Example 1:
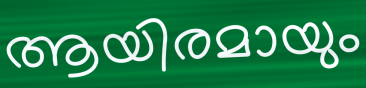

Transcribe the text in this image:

ആയിരമായും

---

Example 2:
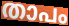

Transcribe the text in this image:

താപം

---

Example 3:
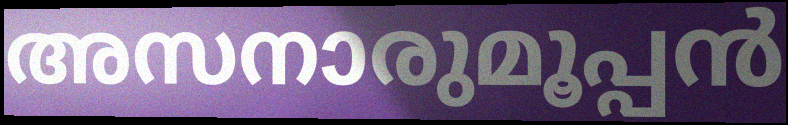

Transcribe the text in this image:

അസനാരുമൂപ്പൻ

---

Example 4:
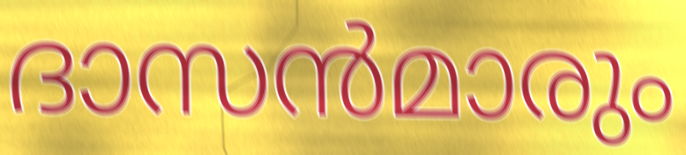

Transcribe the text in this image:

ദാസൻമാരും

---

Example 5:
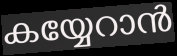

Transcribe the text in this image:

കയ്യേറാൻ